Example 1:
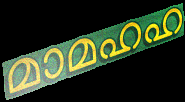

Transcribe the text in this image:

മാമഹഹ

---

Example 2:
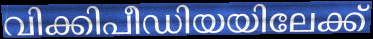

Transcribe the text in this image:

വിക്കിപീഡിയയിലേക്ക്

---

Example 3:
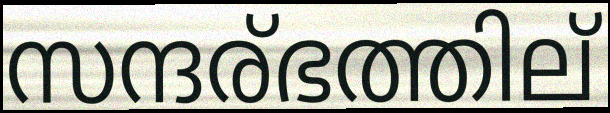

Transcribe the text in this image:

സന്ദര്ഭത്തില്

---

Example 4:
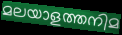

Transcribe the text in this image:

മലയാളത്തനിമ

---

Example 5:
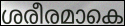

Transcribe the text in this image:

ശരീരമാകെ